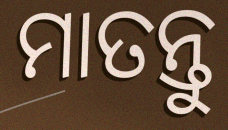
ମାତନ୍ତୁ